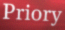
Priory